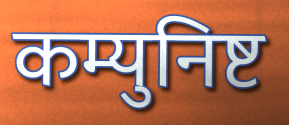
कम्युनिष्ट